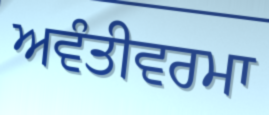
ਅਵੰਤੀਵਰਮਾ